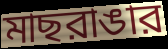
মাছরাঙার